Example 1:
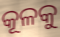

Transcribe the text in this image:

କୂଳକୁ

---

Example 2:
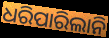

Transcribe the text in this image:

ଧରିପାରିଲାନି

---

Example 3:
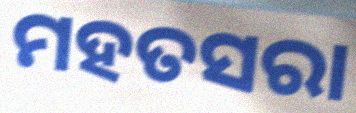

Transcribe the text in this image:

ମହତସରା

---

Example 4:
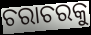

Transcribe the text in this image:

ଚରାଚରକୁ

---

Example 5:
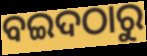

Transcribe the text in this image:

ବଇଦଠାରୁ